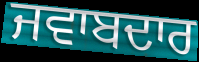
ਜਵਾਬਦਾਰ